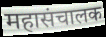
महासंचालक